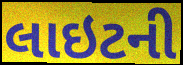
લાઇટની